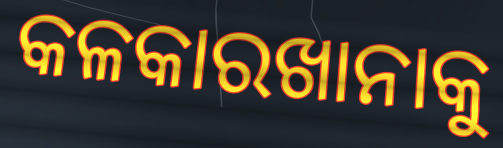
କଳକାରଖାନାକୁ